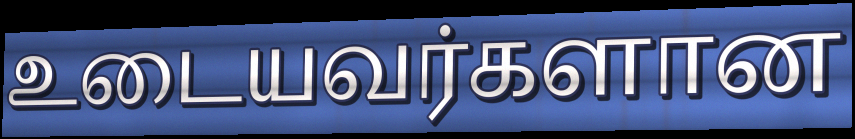
உடையவர்களான